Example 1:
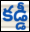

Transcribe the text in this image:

కడ్డీ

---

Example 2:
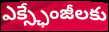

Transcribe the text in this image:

ఎక్స్ఛేంజీలకు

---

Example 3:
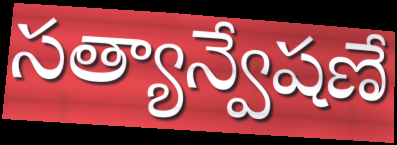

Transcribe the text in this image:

సత్యాన్వేషణే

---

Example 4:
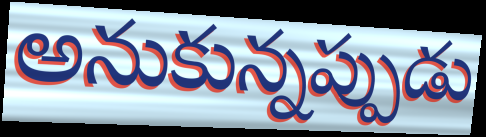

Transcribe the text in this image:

అనుకున్నప్పుడు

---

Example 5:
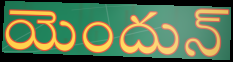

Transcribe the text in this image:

యెందున్